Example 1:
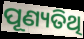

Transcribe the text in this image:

ପୂଣ୍ୟତିଥି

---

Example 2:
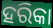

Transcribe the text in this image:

ହରିକା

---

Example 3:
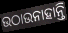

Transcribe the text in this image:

ଉଠାଉନାହାନ୍ତି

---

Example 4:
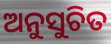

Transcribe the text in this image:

ଅନୁସୁଚିତ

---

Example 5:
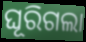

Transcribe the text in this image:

ଘୂରିଗଲା